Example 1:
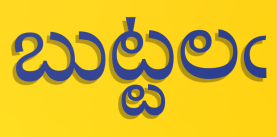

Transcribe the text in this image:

బుట్టలఁ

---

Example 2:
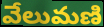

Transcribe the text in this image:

వేలుమణి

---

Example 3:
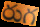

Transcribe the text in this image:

రుగ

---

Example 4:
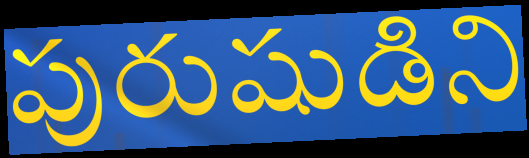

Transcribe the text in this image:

పురుషుడిని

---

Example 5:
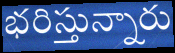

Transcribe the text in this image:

భరిస్తున్నారు